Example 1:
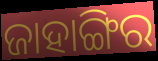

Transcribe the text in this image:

ଜାହାଙ୍ଗିର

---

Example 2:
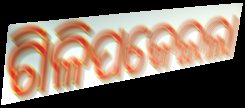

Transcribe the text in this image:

ଗିଳିପକେଇଲା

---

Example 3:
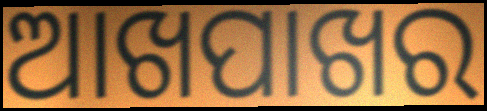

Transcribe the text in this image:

ଆଖପାଖର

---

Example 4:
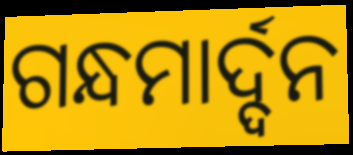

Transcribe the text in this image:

ଗନ୍ଧମାର୍ଦ୍ଦନ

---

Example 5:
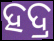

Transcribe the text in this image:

ହଦ୍ର